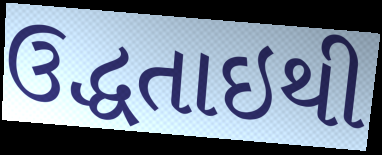
ઉદ્ધતાઇથી